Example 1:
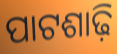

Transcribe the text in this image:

ପାଟଶାଢ଼ି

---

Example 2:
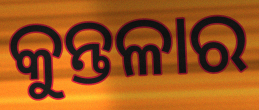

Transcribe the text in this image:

କୁନ୍ତଳାର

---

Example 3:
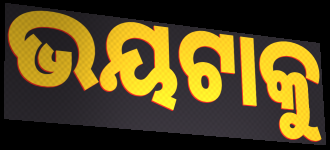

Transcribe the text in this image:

ଭୟଟାକୁ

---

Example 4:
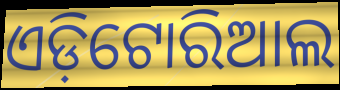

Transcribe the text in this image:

ଏଡ଼ିଟୋରିଆଲ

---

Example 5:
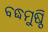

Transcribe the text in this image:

ବଦ୍ଧମୁଷ୍ଠି